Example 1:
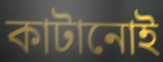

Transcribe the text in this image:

কাটানোই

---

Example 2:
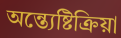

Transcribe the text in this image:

অন্ত্যেষ্টিক্রিয়া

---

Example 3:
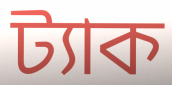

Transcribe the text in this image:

ট্যাক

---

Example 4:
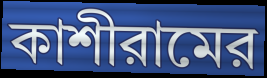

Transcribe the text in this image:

কাশীরামের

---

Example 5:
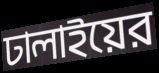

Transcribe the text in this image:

ঢালাইয়ের